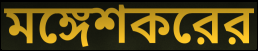
মঙ্গেশকরের